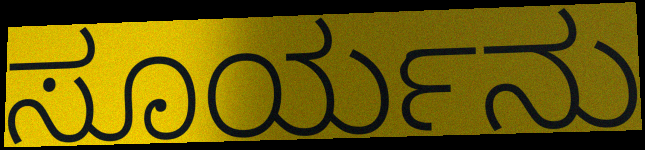
ಸೂರ್ಯನು